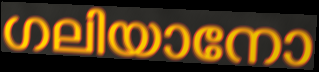
ഗലിയാനോ